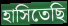
হাসিতেছি